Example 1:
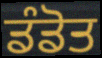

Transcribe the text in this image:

ਡੰਡੋਤ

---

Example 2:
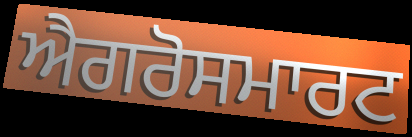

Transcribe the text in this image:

ਐਗਰੋਸਮਾਰਟ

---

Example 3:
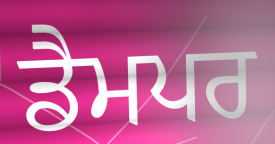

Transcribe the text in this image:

ਡੈਮਪਰ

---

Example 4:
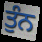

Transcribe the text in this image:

ਤੁੰਨ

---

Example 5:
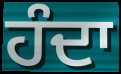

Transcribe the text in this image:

ਹੰਦਾ